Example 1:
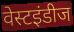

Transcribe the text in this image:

वेस्टइंडीज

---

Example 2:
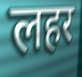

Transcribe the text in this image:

लहर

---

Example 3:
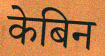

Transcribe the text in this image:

केबिन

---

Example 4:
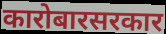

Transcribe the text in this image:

कारोबारसरकार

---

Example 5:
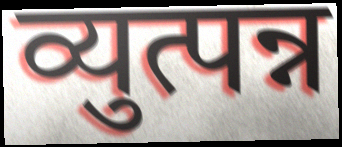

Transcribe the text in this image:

व्युत्पन्न